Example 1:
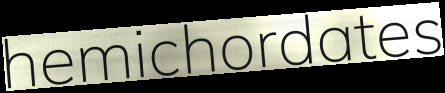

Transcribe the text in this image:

hemichordates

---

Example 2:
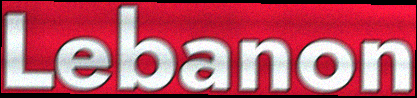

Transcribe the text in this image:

Lebanon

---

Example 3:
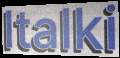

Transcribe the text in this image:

Italki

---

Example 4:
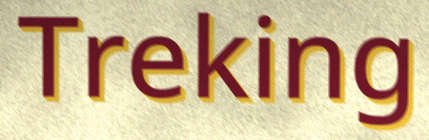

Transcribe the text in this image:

Treking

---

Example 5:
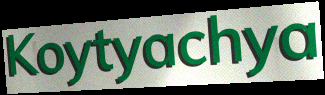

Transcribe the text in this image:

Koytyachya